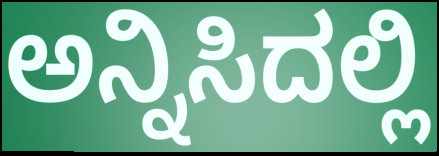
ಅನ್ನಿಸಿದಲ್ಲಿ